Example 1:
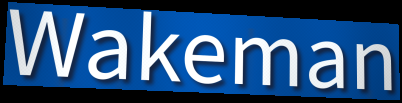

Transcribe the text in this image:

Wakeman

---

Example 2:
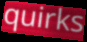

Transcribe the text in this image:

quirks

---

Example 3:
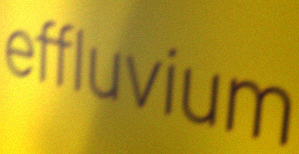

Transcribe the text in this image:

effluvium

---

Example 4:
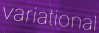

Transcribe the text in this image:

variational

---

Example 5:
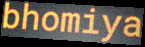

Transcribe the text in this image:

bhomiya